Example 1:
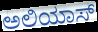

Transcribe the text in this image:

ಅಲಿಯಾಸ್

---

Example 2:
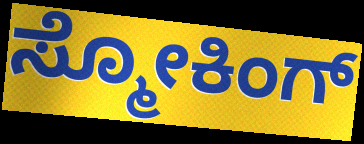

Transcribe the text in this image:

ಸ್ಮೋಕಿಂಗ್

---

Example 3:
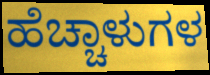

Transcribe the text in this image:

ಹೆಚ್ಚಾಳುಗಳ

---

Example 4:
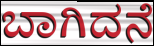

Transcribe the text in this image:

ಬಾಗಿದನೆ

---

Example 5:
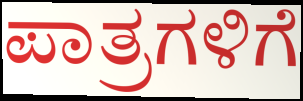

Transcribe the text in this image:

ಪಾತ್ರಗಳಿಗೆ